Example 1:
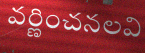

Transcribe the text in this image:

వర్ణించనలవి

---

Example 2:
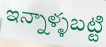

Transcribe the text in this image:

ఇన్నాళ్ళబట్టి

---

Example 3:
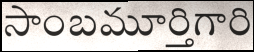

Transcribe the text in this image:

సాంబమూర్తిగారి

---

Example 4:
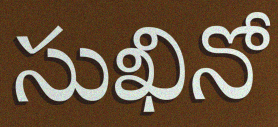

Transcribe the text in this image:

సుఖినో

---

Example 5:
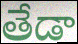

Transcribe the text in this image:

తేడా